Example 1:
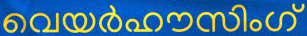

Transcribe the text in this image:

വെയർഹൗസിംഗ്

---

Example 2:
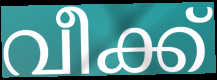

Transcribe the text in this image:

വീക്ക്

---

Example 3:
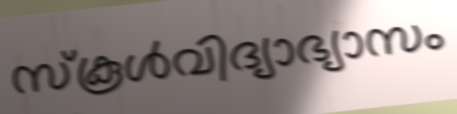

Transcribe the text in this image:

സ്കൂൾവിദ്യാഭ്യാസം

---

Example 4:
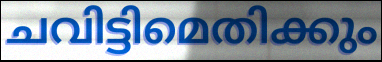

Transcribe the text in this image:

ചവിട്ടിമെതിക്കും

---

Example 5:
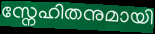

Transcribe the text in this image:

സ്നേഹിതനുമായി